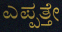
ಎಪ್ಪತ್ತೇ